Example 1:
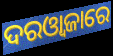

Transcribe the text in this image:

ଦରଓ୍ୱାଜାରେ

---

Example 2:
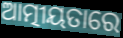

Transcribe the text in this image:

ଆତ୍ମୀୟତାରେ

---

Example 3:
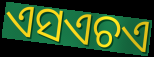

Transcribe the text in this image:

ଏସଏଚଏ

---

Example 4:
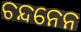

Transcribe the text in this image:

ଚନ୍ଦନେନ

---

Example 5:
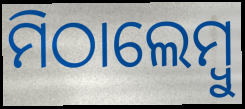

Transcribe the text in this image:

ମିଠାଲେମ୍ବୁ